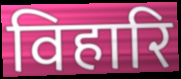
विहारि